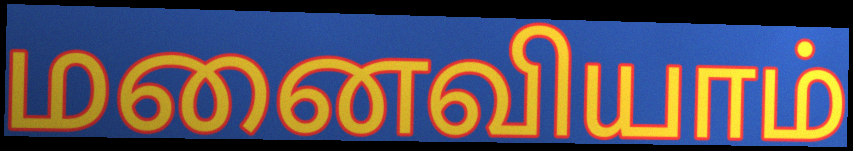
மனைவியாம்